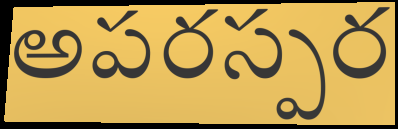
అపరస్పర